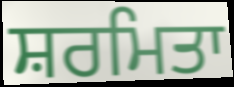
ਸ਼ਰਮਿਤਾ